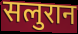
सलुरान